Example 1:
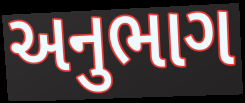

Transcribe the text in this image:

અનુભાગ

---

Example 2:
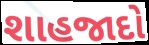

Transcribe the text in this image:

શાહજાદો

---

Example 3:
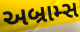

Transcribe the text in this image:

અબ્રામ્સ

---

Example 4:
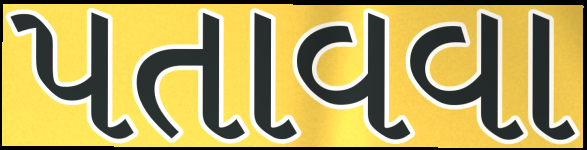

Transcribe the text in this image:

પતાવવા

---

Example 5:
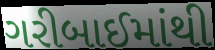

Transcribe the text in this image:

ગરીબાઈમાંથી